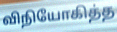
விநியோகித்த